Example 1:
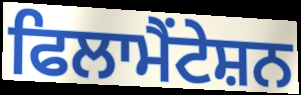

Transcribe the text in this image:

ਫਿਲਾਮੈਂਟੇਸ਼ਨ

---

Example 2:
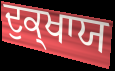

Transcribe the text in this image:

ਦੁਕ੍ਖਾਯ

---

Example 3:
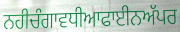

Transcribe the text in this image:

ਨਹੀਚੰਗਾਵਧੀਆਫਾਈਨਅੱਪਰ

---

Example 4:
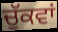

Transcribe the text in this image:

ਚੁੱਕਵਾਂ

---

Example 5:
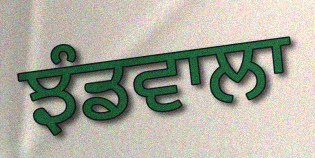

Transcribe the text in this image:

ਝੰਡਵਾਲਾ